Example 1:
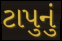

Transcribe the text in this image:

ટાપુનું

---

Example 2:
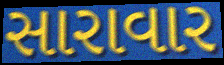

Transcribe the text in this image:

સારાવાર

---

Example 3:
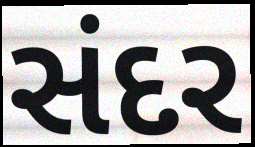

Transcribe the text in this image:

સંદર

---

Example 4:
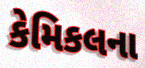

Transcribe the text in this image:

કેમિકલના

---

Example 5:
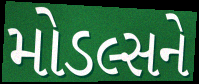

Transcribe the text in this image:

મોડલ્સને